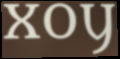
xoy